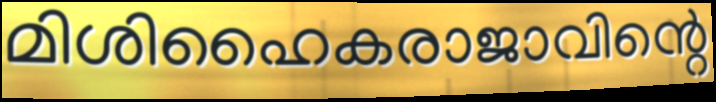
മിശിഹൈകരാജാവിന്റെ